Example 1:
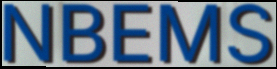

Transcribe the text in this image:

NBEMS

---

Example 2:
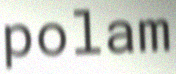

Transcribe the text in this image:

polam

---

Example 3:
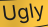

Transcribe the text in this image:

Ugly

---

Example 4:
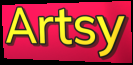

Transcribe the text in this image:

Artsy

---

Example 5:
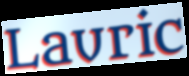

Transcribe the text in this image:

Lauric